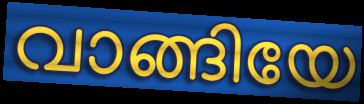
വാങ്ങിയേ